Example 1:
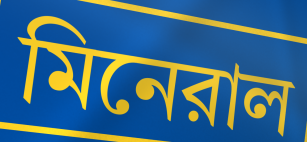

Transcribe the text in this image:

মিনেরাল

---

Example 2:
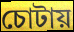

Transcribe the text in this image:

চোটায়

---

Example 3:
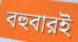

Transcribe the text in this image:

বহুবারই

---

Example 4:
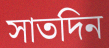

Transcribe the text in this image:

সাতদিন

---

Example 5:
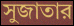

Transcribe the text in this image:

সুজাতার